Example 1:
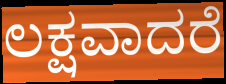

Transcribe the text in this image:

ಲಕ್ಷವಾದರೆ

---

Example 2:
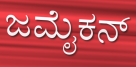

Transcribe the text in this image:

ಜಮೈಕನ್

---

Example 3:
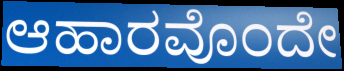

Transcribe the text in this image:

ಆಹಾರವೊಂದೇ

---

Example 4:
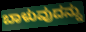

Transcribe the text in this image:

ಬಾಳುವುದನ್ನು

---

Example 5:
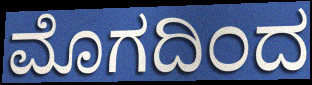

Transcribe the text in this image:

ಮೊಗದಿಂದ